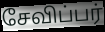
சேவிப்பர்